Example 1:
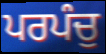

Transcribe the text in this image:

ਪਰਪੰਚੁ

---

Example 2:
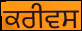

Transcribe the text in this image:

ਕਰੀਵਸ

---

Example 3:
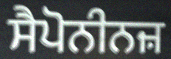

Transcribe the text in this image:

ਸੈਪੋਨੀਨਜ਼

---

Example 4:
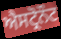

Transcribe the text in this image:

ਐਸਟ੍ਰੋਨੌਟ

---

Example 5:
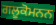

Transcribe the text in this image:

ਗਲੂਕੋਮਨਨ